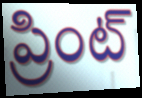
ప్రింట్